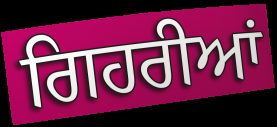
ਗਿਹਰੀਆਂ